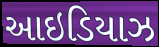
આઇડિયાઝ